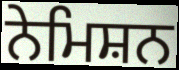
ਨੇਮਿਸ਼ਨ